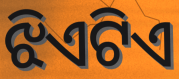
ଝିଏଟିଏ